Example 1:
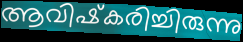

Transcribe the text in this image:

ആവിഷ്‌കരിച്ചിരുന്നു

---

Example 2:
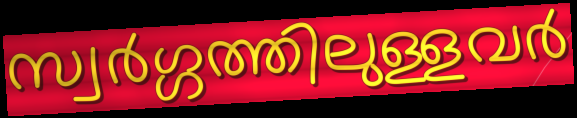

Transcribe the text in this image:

സ്വർഗ്ഗത്തിലുള്ളവർ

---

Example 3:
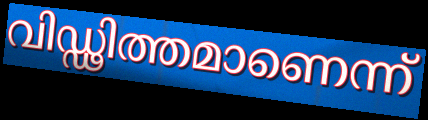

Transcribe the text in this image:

വിഡ്ഢിത്തമാണെന്ന്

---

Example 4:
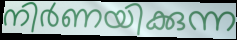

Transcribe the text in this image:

നിർണയിക്കുന്ന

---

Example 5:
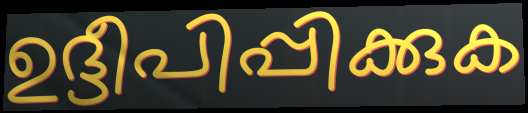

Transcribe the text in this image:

ഉദ്ദീപിപ്പിക്കുക